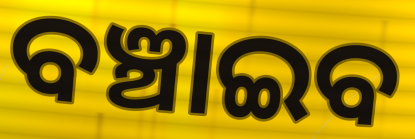
ବଞ୍ଚାଇବ